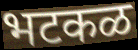
भटकळ